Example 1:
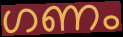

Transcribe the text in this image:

ഗണം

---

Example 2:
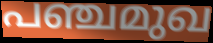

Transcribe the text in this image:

പഞ്ചമുഖ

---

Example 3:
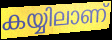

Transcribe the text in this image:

കയ്യിലാണ്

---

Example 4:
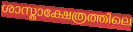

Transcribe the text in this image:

ശാസ്താക്ഷേത്രത്തിലെ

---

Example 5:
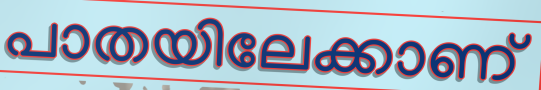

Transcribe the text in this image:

പാതയിലേക്കാണ്